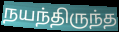
நயந்திருந்த